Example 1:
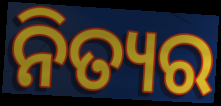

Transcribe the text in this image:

ନିତ୍ୟର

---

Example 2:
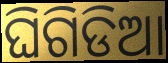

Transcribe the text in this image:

ଘିଗିଡିଆ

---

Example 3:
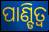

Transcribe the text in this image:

ପାଣ୍ଡିତ୍ୱ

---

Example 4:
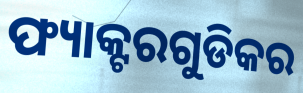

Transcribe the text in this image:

ଫ୍ୟାକ୍ଟରଗୁଡିକର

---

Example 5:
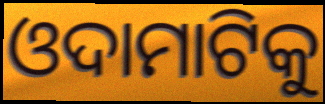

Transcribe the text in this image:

ଓଦାମାଟିକୁ